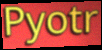
Pyotr